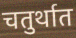
चतुर्थात